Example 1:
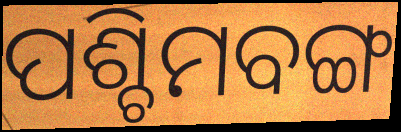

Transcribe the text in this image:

ପଶ୍ଚିମବଙ୍ଗ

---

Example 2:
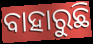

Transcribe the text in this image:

ବାହାରୁଛି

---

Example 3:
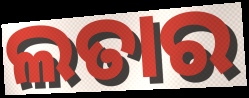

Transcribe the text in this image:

ଲତାର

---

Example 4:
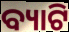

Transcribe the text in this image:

ବ୍ୟାଟି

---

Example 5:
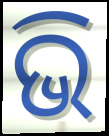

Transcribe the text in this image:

ଭି